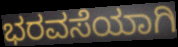
ಭರವಸೆಯಾಗಿ